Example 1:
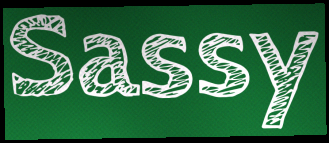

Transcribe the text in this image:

Sassy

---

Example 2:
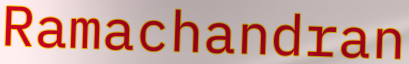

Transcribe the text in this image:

Ramachandran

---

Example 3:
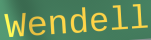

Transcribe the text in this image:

Wendell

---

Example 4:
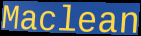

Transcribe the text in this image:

Maclean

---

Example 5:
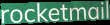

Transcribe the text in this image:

rocketmail